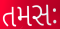
તમસઃ